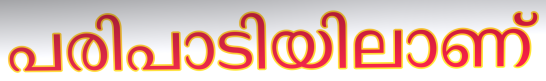
പരിപാടിയിലാണ്